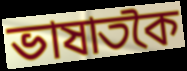
ভাষাতকৈ